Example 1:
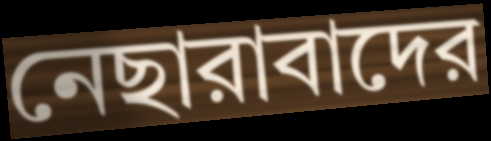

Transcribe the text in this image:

নেছারাবাদের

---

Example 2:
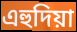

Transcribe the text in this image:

এহুদিয়া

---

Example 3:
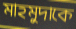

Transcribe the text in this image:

মাহমুদাকে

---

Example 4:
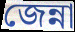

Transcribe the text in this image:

জেন্না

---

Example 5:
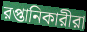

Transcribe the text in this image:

রপ্তানিকারীরা